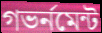
গভর্নমেন্ট